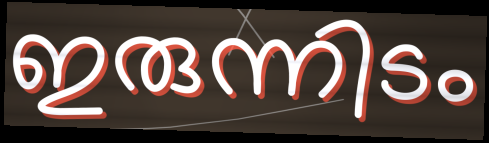
ഇരുന്നിടം